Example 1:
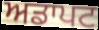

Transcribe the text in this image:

ਅਡਾਪਟ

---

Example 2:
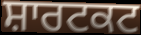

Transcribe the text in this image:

ਸ਼ਾਰਟਕਟ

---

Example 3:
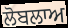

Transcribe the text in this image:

ਲੋਬਲਾਅ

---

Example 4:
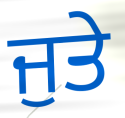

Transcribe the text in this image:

ਜੁਤੇ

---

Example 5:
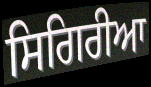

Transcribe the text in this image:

ਸਿਗਿਰੀਆ